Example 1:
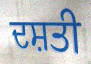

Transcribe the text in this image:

ਦਸ਼ਤੀ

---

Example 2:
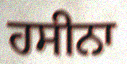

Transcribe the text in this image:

ਹਸੀਨਾ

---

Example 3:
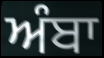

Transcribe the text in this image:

ਅੰਬਾ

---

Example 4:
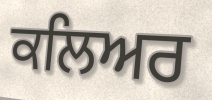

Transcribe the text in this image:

ਕਲਿਅਰ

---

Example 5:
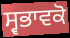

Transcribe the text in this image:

ਸ੍ਵਭਾਵਕੋ